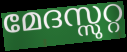
മേദസ്സുറ്റ